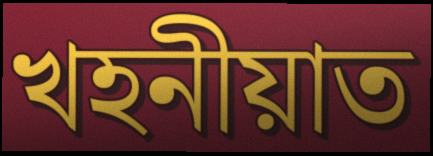
খহনীয়াত